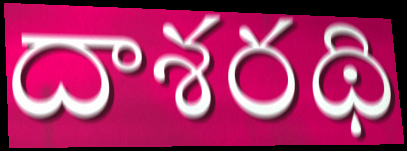
దాశరథి